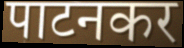
पाटनकर